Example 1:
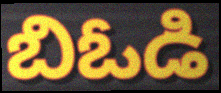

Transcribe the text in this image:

బిఓడి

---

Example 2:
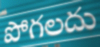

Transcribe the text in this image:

పోగలదు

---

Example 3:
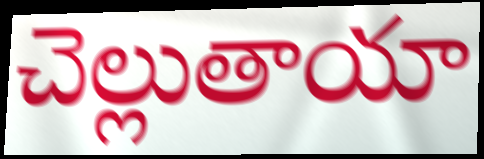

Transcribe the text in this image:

చెల్లుతాయా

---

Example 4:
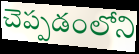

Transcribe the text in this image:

చెప్పడంలోని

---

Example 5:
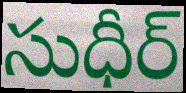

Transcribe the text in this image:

సుధీర్